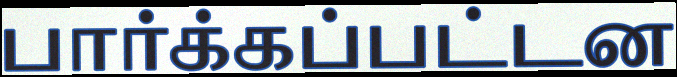
பார்க்கப்பட்டன